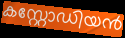
കസ്റ്റോഡിയൻ